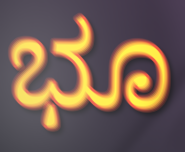
ಭೂ